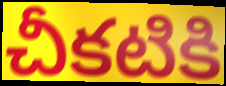
చీకటికి